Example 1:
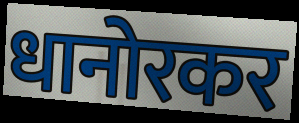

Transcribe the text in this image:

धानोरकर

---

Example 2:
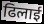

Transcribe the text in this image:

ढिलाई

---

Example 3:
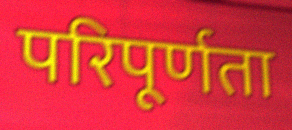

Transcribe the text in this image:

परिपूर्णता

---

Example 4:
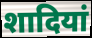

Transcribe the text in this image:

शादियां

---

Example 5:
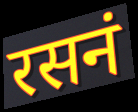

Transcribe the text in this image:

रसनं